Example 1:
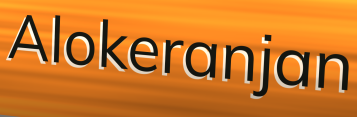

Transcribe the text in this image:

Alokeranjan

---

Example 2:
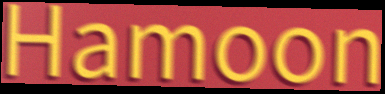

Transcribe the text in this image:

Hamoon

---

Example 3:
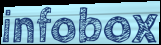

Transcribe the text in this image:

infobox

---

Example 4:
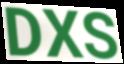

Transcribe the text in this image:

DXS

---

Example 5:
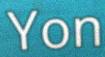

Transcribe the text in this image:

Yon